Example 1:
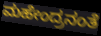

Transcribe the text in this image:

ಮಹೇಂದ್ರನಂತೆ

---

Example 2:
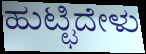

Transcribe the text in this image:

ಹುಟ್ಟಿದೇಳು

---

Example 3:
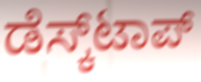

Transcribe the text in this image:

ಡೆಸ್ಕ್‌ಟಾಪ್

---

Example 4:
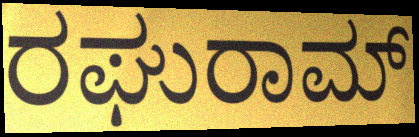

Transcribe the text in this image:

ರಘುರಾಮ್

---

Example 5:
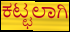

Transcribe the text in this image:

ಕಟ್ಟಲಾಗಿ